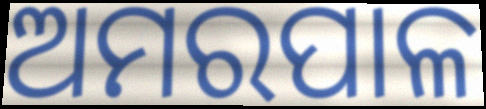
ଅମରପାଳ